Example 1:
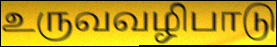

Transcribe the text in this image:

உருவவழிபாடு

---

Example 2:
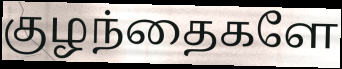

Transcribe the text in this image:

குழந்தைகளே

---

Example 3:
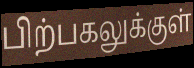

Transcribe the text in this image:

பிற்பகலுக்குள்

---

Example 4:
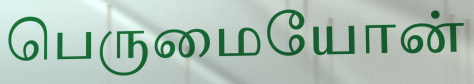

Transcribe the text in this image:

பெருமையோன்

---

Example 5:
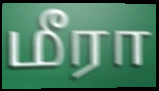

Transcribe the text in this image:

மீரா